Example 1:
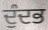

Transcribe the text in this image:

ਦੁੰਦਭ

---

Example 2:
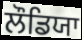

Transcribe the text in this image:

ਲੌਡਿਯਾ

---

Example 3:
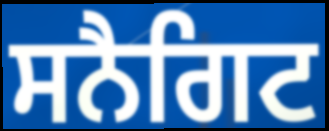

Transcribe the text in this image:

ਸਨੈਗਿਟ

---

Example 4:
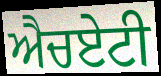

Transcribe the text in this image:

ਐਚਏਟੀ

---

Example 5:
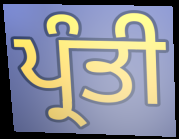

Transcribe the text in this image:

ਪ੍ਰੰਤੀ